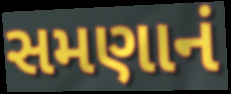
સમણાનં